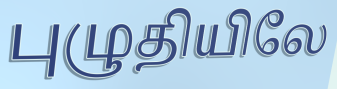
புழுதியிலே